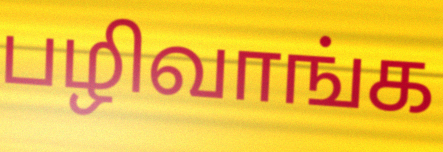
பழிவாங்க